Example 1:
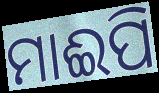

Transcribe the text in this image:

ମାଈପି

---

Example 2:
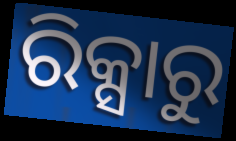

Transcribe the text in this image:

ରିକ୍ସାରୁ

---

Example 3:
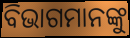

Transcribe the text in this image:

ବିଭାଗମାନଙ୍କୁ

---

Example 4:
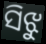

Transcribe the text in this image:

ସିଝୁ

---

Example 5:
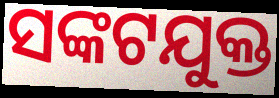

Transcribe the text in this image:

ସଙ୍କଟଯୁକ୍ତ